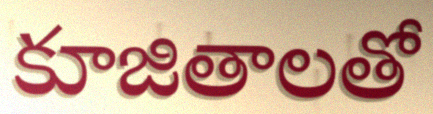
కూజితాలతో